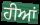
ਹੀਆਂ